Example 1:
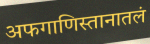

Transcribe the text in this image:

अफगाणिस्तानातलं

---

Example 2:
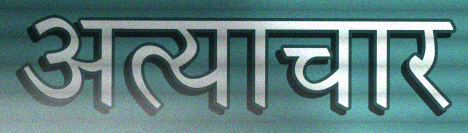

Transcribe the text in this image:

अत्याचार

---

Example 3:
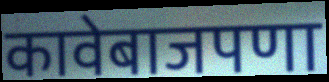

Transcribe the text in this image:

कावेबाजपणा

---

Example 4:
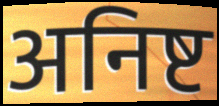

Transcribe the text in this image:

अनिष्ट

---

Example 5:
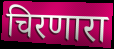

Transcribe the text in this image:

चिरणारा